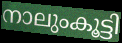
നാലുംകൂട്ടി